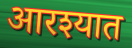
आरश्यात